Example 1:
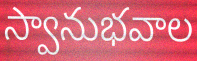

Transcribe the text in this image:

స్వానుభవాల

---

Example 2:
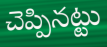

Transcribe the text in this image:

చెప్పినట్టు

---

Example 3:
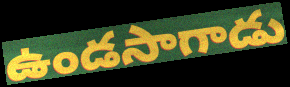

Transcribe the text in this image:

ఉండసాగాడు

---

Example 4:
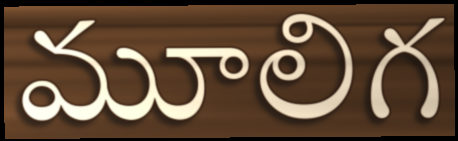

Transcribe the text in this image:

మూలిగ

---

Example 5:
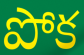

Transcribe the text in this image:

పోక